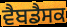
ਵੈਬਡੈਸਕ